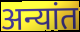
अन्यांत